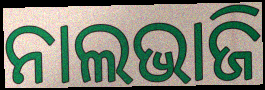
ନାଲଭାଜି